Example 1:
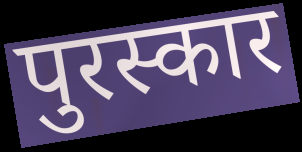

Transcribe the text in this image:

पुरस्कार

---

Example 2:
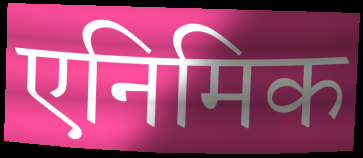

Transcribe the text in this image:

एनिमिक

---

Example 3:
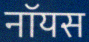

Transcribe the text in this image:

नॉयस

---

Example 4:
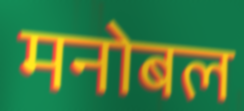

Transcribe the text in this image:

मनोबल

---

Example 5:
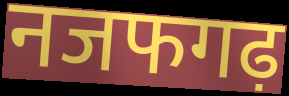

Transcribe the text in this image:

नजफगढ़